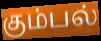
கும்பல்